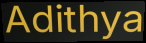
Adithya